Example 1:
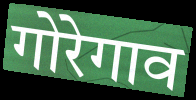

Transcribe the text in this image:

गोरेगाव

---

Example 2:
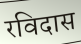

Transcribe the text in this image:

रविदास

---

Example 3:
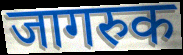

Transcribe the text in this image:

जागरुक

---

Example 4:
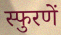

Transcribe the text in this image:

स्फुरणें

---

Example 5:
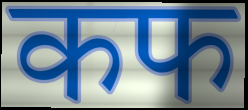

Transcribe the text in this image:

कफ